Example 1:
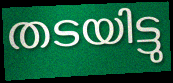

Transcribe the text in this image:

തടയിട്ടു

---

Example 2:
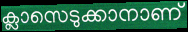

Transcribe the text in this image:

ക്ലാസെടുക്കാനാണ്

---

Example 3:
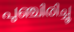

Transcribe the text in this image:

പുഞ്ചിരിച്ചൂ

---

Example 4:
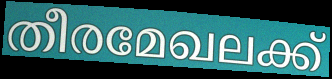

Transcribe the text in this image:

തീരമേഖലക്ക്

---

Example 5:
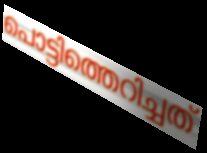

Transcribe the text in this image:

പൊട്ടിത്തെറിച്ചത്